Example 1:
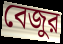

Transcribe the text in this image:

বেজুর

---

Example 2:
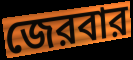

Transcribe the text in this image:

জেরবার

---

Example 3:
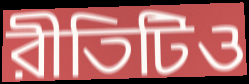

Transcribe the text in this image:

রীতিটিও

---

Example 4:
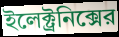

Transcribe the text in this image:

ইলেক্ট্রনিক্সের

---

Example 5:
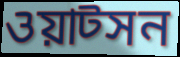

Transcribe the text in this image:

ওয়াট্সন